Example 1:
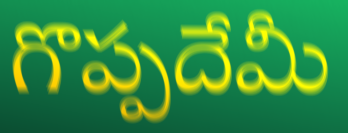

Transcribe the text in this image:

గొప్పదేమీ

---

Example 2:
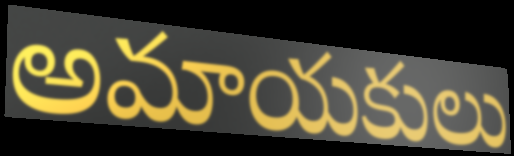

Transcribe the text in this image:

అమాయకులు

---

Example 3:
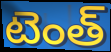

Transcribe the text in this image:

టెంత్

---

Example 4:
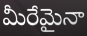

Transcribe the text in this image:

మీరేమైనా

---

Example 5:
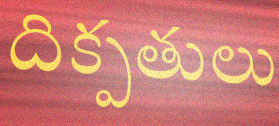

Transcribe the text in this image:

దిక్పతులు